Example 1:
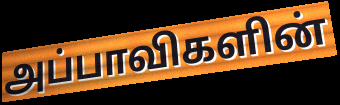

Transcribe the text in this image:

அப்பாவிகளின்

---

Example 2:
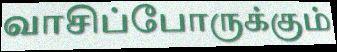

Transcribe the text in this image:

வாசிப்போருக்கும்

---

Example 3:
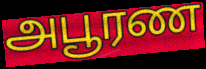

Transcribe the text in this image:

அபூரண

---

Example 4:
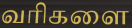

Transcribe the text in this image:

வரிகளை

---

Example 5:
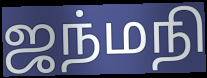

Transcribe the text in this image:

ஜந்மநி